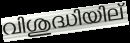
വിശുദ്ധിയില്